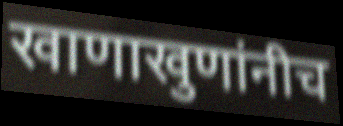
खाणाखुणांनीच